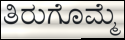
ತಿರುಗೊಮ್ಮೆ